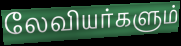
லேவியர்களும்